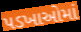
પડખાઓમાં